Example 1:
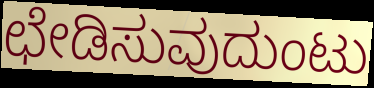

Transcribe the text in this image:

ಛೇಡಿಸುವುದುಂಟು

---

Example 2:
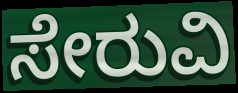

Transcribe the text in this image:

ಸೇರುವಿ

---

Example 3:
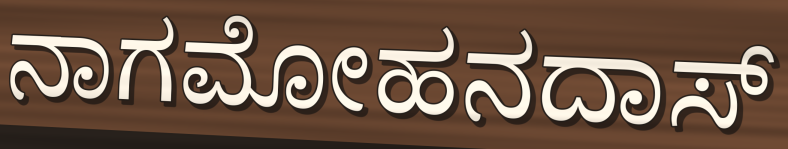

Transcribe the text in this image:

ನಾಗಮೋಹನದಾಸ್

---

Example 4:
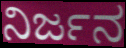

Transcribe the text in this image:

ನಿರ್ಜನ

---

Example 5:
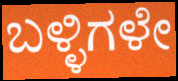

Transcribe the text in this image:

ಬಳ್ಳಿಗಳೇ